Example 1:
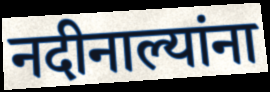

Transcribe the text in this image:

नदीनाल्यांना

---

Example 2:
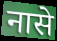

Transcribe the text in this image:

नासे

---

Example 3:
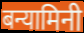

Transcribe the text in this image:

बन्यामिनी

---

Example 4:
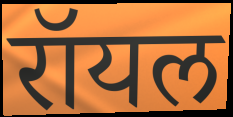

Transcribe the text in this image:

रॉयल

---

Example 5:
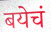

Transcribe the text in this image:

बयेचं